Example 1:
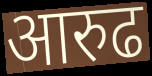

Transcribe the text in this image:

आरुढ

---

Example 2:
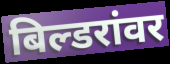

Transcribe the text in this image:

बिल्डरांवर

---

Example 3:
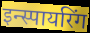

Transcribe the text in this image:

इन्स्पायरिंग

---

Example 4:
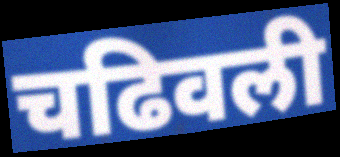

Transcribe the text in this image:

चढिवली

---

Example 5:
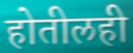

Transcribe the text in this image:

होतीलही